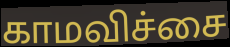
காமவிச்சை